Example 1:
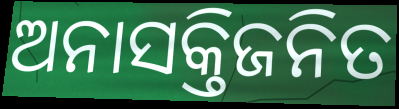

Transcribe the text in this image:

ଅନାସକ୍ତିଜନିତ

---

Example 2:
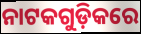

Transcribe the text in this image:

ନାଟକଗୁଡ଼ିକରେ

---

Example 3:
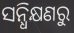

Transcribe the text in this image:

ସନ୍ଧିକ୍ଷଣରୁ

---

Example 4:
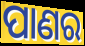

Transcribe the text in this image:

ପାଣର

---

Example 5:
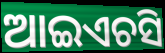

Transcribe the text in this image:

ଆଇଏଚସି